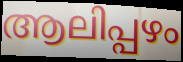
ആലിപ്പഴം